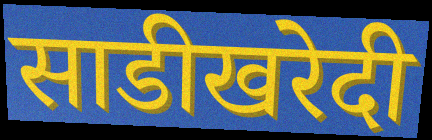
साडीखरेदी